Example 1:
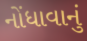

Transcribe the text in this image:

નોંધાવાનું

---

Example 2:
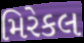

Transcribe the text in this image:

મિરેકલ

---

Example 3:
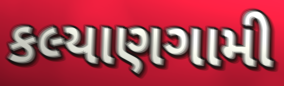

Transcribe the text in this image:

કલ્યાણગામી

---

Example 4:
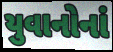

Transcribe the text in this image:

યુવાનોનાં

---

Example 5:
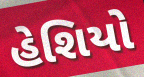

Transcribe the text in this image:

હેશિયો